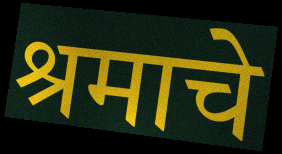
श्रमाचे